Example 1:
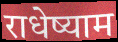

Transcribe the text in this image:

राधेष्याम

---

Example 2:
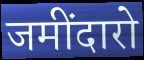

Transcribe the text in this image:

जमींदारो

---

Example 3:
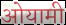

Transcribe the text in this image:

ओयामी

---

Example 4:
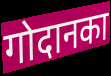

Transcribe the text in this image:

गोदानका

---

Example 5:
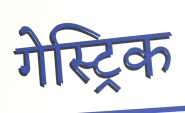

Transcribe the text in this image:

गेस्ट्रिक